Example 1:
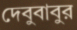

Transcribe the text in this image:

দেবুবাবুর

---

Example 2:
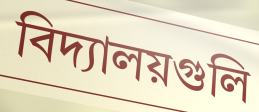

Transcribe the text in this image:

বিদ্যালয়গুলি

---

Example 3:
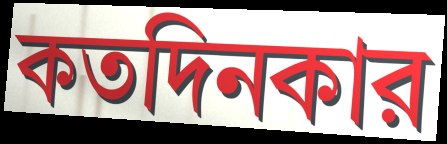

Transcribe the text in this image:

কতদিনকার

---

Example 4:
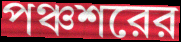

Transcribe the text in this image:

পঞ্চশরের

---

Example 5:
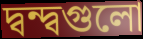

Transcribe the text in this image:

দ্বন্দ্বগুলো